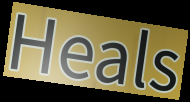
Heals